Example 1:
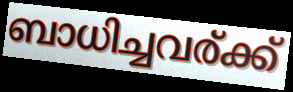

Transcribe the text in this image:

ബാധിച്ചവര്ക്ക്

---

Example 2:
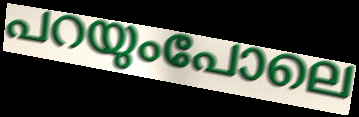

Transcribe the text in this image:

പറയുംപോലെ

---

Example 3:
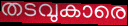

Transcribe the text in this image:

തടവുകാരെ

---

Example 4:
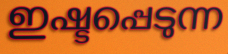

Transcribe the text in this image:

ഇഷ്ടപ്പെടുന്ന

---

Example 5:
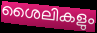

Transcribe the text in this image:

ശൈലികളും